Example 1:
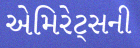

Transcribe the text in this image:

એમિરેટ્સની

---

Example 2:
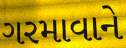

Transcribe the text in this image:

ગરમાવાને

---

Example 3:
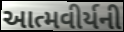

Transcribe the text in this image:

આત્મવીર્યની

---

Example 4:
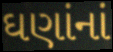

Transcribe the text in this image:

ઘણાંનાં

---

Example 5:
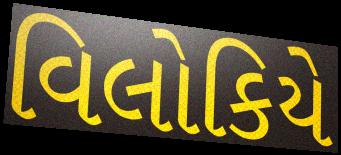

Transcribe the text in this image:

વિલોકિયે